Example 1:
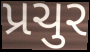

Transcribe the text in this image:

પ્રચુર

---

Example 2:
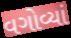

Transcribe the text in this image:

વગોવ્યાં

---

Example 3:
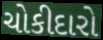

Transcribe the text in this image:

ચોકીદારો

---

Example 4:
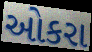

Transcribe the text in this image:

ઓકરા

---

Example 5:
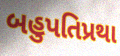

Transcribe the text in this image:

બહુપતિપ્રથા